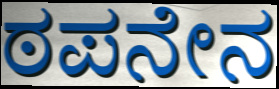
ಠಪನೇನ